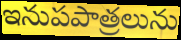
ఇనుపపాత్రలును